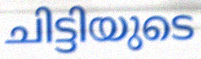
ചിട്ടിയുടെ